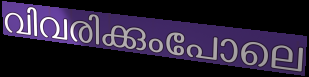
വിവരിക്കുംപോലെ